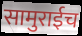
सामुराईच